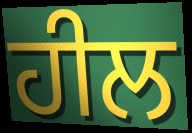
ਹੀਲ